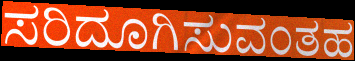
ಸರಿದೂಗಿಸುವಂತಹ